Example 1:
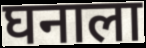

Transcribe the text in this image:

घनाला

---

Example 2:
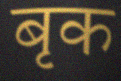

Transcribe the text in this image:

बृक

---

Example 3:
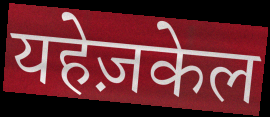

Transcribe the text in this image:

यहेज़केल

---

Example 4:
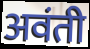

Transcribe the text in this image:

अवंती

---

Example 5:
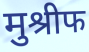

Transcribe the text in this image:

मुश्रीफ